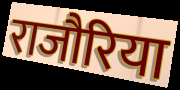
राजौरिया